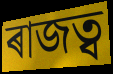
ৰাজত্ব